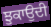
ਝੁਕਾਉਦੀ